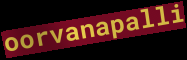
oorvanapalli